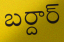
బర్దార్